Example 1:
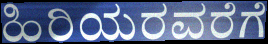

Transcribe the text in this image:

ಹಿರಿಯರವರೆಗೆ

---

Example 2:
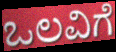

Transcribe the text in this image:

ಒಲವಿಗೆ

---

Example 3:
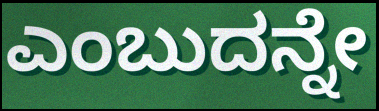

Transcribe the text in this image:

ಎಂಬುದನ್ನೇ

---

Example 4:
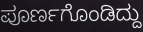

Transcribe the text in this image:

ಪೂರ್ಣಗೊಂಡಿದ್ದು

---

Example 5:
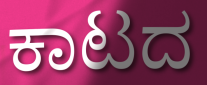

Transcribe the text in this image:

ಕಾಟದ